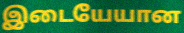
இடையேயான